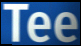
Tee